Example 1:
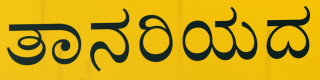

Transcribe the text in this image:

ತಾನರಿಯದ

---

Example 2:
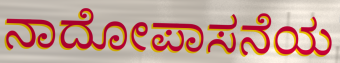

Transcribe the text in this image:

ನಾದೋಪಾಸನೆಯ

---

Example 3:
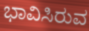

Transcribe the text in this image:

ಭಾವಿಸಿರುವ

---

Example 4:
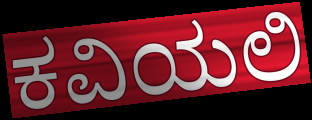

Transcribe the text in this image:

ಕವಿಯಲಿ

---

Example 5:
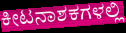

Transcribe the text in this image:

ಕೀಟನಾಶಕಗಳಲ್ಲಿ